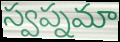
స్వప్నమా